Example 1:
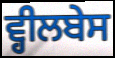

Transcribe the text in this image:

ਵ੍ਹੀਲਬੇਸ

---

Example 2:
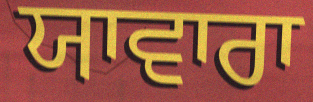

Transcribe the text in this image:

ਯਾਵਾਰਾ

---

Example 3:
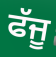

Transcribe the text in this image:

ਫੱਜੂ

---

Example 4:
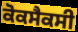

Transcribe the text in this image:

ਕੋਕਸੈਕਸੀ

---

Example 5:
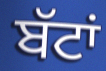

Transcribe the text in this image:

ਬੱਟਾਂ